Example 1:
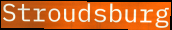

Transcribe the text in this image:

Stroudsburg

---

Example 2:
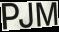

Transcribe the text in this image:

PJM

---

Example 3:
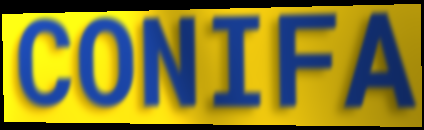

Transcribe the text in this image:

CONIFA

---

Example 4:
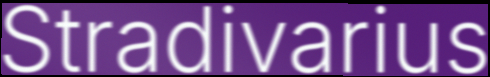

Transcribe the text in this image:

Stradivarius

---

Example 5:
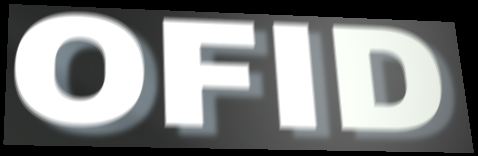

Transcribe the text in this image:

OFID